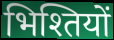
भिश्तियों